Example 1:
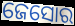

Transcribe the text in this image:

ଜେସୋର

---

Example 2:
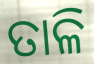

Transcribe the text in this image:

ତାଳି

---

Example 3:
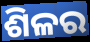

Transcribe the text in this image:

ଶିଳର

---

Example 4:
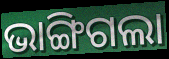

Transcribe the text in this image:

ଭାଙ୍ଗିଗଲା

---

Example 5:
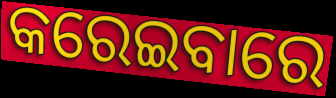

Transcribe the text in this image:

କରେଇବାରେ